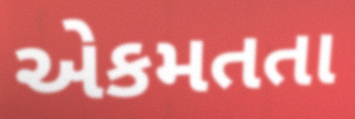
એકમતતા